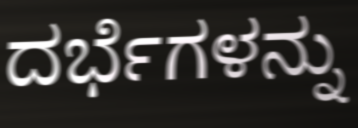
ದರ್ಭೆಗಳನ್ನು